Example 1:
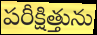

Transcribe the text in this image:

పరీక్షిత్తును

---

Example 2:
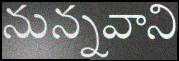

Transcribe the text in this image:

నున్నవాని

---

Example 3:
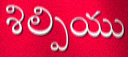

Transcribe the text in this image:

శిల్పియు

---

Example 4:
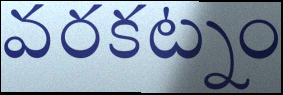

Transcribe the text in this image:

వరకట్నం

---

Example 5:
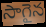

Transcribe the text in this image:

సాగైన